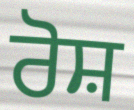
ਰੋਸ਼